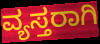
ವ್ಯಸ್ತರಾಗಿ